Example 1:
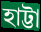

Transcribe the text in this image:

হাট্টা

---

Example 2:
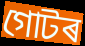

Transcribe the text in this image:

গোটৰ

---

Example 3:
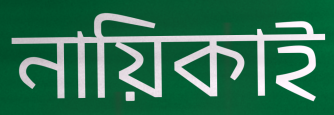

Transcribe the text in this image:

নায়িকাই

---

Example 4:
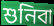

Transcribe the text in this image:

শুনিবা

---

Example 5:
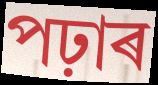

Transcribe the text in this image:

পঢ়াৰ